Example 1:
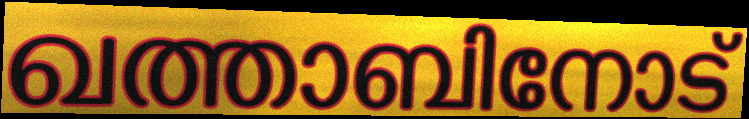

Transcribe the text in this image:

ഖത്താബിനോട്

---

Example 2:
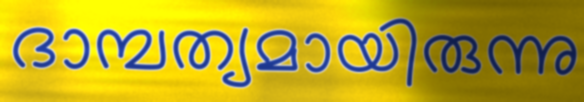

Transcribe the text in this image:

ദാമ്പത്യമായിരുന്നു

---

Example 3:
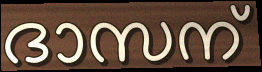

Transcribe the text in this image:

ദാസന്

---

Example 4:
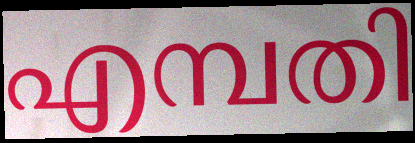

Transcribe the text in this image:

എമ്പതി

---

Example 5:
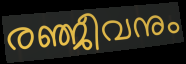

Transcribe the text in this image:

രഞ്ജീവനും